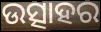
ଉତ୍ସାହର